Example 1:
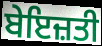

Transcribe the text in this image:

ਬੇਇਜ਼ਤੀ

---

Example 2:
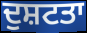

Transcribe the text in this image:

ਦੁਸ਼ਟਤਾ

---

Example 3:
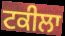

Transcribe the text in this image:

ਟਕੀਲਾ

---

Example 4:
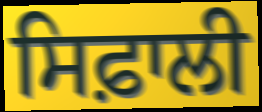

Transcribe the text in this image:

ਸਿਫ਼ਾਲੀ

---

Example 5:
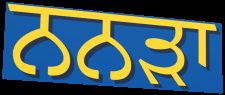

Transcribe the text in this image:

ਨਨੜਾ